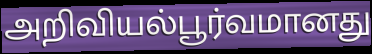
அறிவியல்பூர்வமானது